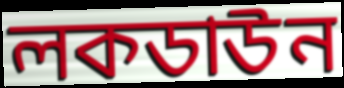
লকডাউন